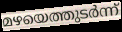
മഴയെത്തുടർന്ന്